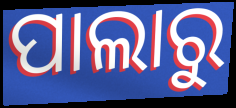
ପାଲାରୁ